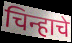
चिन्हाचे